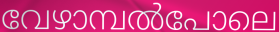
വേഴാമ്പൽപോലെ